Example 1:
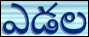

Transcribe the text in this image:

ఎడల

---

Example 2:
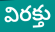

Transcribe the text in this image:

విరక్తు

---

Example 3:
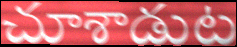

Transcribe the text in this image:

చూశాడుట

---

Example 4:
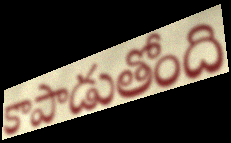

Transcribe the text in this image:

కాపాడుతోంది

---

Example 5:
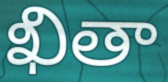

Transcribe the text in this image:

ఖితా